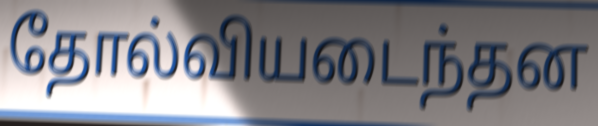
தோல்வியடைந்தன